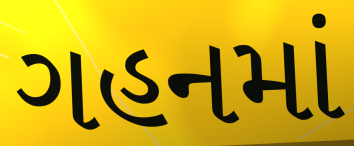
ગહનમાં